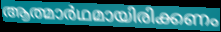
ആത്മാർഥമായിരിക്കണം